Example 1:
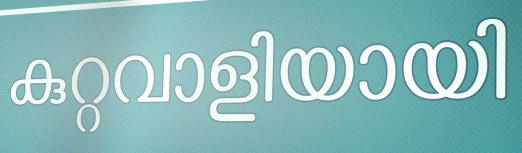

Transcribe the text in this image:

കുറ്റവാളിയായി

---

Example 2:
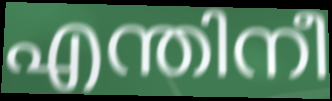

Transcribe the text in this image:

എന്തിനീ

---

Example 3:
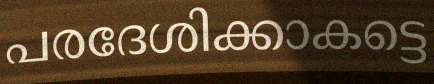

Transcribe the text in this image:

പരദേശിക്കാകട്ടെ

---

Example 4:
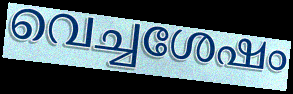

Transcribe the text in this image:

വെച്ചശേഷം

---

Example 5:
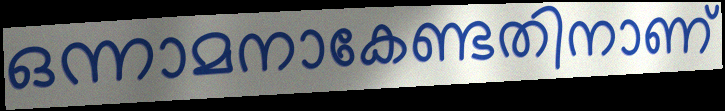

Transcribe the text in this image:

ഒന്നാമനാകേണ്ടതിനാണ്